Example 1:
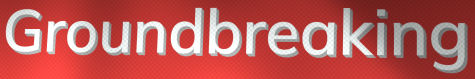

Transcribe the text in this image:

Groundbreaking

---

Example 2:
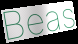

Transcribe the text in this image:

Beas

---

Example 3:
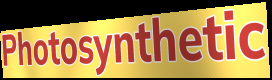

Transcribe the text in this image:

Photosynthetic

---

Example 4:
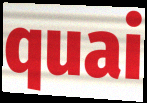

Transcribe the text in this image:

quai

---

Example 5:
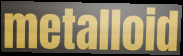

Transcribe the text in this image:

metalloid